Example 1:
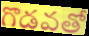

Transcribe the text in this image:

గొడవతో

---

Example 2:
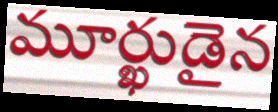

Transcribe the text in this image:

మూర్ఖుడైన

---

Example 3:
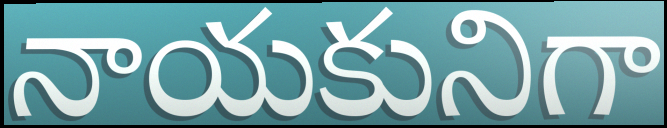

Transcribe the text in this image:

నాయకునిగా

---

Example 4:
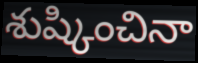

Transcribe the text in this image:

శుష్కించినా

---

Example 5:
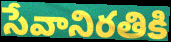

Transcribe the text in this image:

సేవానిరతికి